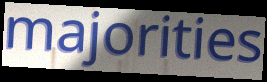
majorities